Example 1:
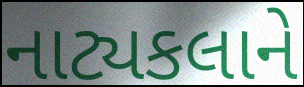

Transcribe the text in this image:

નાટ્યકલાને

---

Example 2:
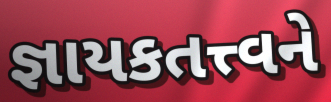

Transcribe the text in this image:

જ્ઞાયકતત્ત્વને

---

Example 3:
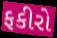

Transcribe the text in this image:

ફકીરો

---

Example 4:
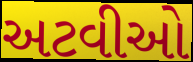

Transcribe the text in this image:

અટવીઓ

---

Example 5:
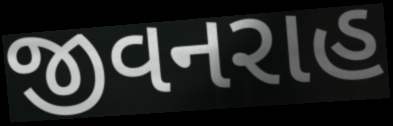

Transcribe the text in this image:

જીવનરાહ